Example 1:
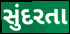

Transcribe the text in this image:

સુંદરતા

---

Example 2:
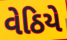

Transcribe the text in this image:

વેઠિયે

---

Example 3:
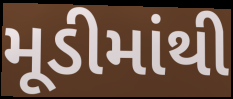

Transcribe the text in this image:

મૂડીમાંથી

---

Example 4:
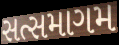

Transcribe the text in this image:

સત્સમાગમ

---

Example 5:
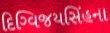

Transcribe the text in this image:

દિગ્વિજયસિંહના